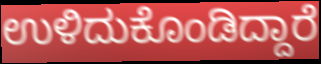
ಉಳಿದುಕೊಂಡಿದ್ದಾರೆ